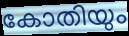
കോതിയും